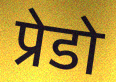
प्रेडो